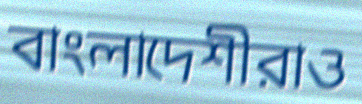
বাংলাদেশীরাও